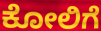
ಕೋಲಿಗೆ